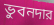
ভুবনদার